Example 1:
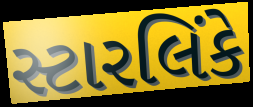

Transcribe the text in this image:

સ્ટારલિંકે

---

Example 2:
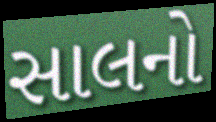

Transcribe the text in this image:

સાલનો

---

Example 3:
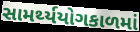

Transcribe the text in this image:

સામર્થ્યયોગકાળમાં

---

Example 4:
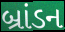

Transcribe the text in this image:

બ્રાંડન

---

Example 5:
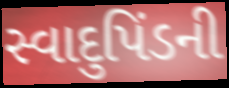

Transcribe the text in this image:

સ્વાદુપિંડની